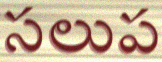
సలుప